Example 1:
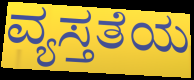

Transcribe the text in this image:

ವ್ಯಸ್ತತೆಯ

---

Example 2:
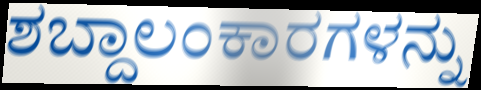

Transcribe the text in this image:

ಶಬ್ದಾಲಂಕಾರಗಳನ್ನು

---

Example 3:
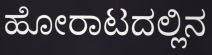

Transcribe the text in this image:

ಹೋರಾಟದಲ್ಲಿನ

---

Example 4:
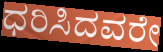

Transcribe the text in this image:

ಧರಿಸಿದವರೇ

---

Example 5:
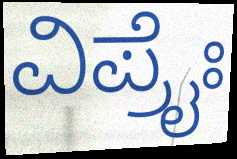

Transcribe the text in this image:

ವಿಪ್ರೈಃ